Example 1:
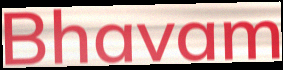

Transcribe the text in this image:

Bhavam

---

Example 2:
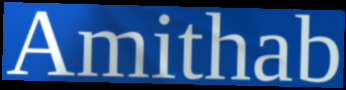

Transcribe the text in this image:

Amithab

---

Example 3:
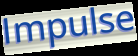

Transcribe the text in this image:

Impulse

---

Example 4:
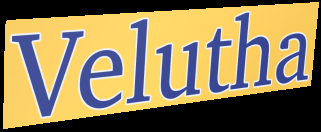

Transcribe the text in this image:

Velutha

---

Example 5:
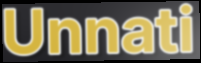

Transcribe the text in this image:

Unnati